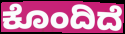
ಕೊಂದಿದೆ